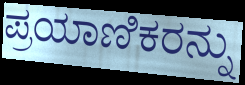
ಪ್ರಯಾಣಿಕರನ್ನು